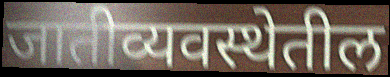
जातीव्यवस्थेतील